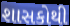
શાસકોથી